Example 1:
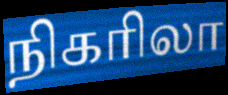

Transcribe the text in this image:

நிகரிலா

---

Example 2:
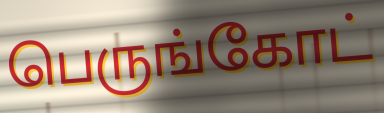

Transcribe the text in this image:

பெருங்கோட்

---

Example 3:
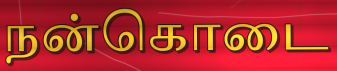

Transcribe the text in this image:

நன்கொடை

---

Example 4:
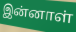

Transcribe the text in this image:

இன்னாள்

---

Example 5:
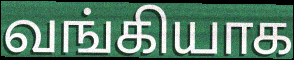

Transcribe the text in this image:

வங்கியாக